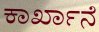
ಕಾರ್ಖಾನೆ